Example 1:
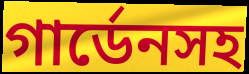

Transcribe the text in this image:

গার্ডেনসহ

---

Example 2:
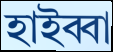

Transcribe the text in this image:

হাইব্বা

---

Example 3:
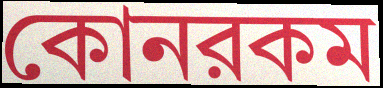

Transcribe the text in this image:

কোনরকম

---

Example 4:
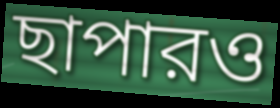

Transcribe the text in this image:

ছাপারও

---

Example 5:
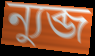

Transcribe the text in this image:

ন্যুব্জ